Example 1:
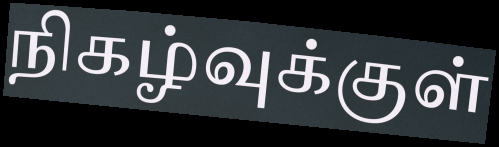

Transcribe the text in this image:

நிகழ்வுக்குள்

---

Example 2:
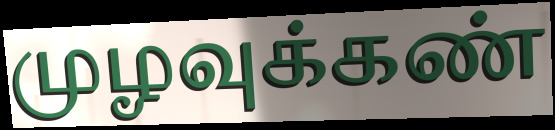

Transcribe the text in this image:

முழவுக்கண்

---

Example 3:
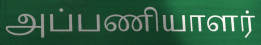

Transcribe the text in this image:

அப்பணியாளர்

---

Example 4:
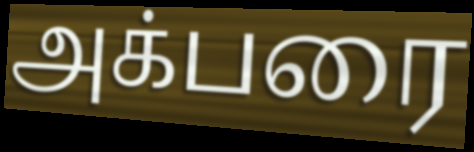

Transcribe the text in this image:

அக்பரை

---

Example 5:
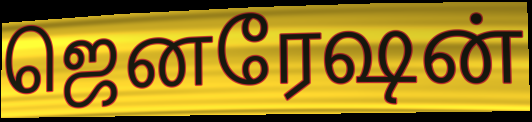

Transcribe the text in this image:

ஜெனரேஷன்